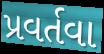
પ્રવર્તવા